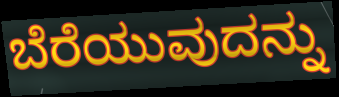
ಬೆರೆಯುವುದನ್ನು